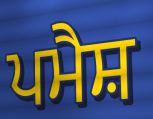
ਪਮੈਸ਼